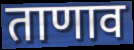
ताणाव